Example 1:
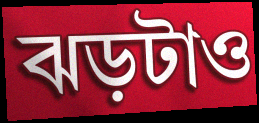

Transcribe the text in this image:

ঝড়টাও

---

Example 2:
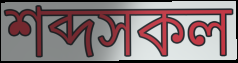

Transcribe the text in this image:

শব্দসকল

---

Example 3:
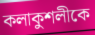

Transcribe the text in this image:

কলাকুশলীকে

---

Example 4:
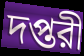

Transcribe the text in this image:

দপ্তরী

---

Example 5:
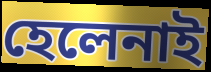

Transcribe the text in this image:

হেলেনাই